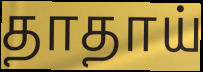
தாதாய்